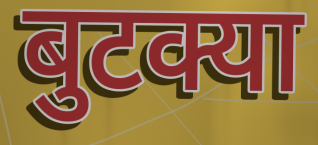
बुटक्या